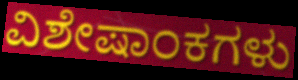
ವಿಶೇಷಾಂಕಗಳು